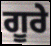
ਗੂਰੇ